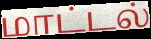
மாட்டல்